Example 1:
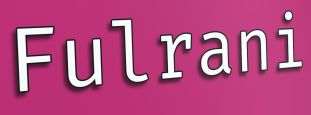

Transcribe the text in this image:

Fulrani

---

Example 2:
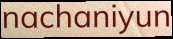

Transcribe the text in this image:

nachaniyun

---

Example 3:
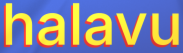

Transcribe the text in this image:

halavu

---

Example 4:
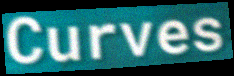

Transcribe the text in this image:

Curves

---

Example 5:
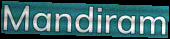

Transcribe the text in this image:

Mandiram